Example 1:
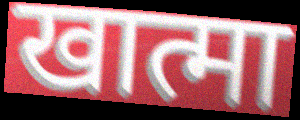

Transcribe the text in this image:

खात्मा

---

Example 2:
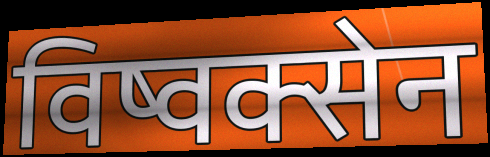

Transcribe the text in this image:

विष्वक्सेन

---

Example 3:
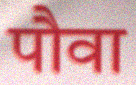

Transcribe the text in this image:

पौवा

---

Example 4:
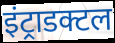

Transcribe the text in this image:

इंट्राडक्टल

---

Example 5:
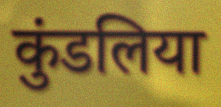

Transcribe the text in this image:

कुंडलिया